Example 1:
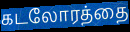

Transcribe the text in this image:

கடலோரத்தை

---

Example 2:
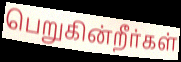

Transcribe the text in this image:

பெறுகின்றீர்கள்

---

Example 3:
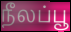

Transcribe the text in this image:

நீலப்பூ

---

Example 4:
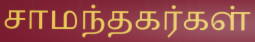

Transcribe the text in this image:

சாமந்தகர்கள்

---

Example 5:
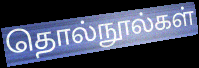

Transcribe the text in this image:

தொல்நூல்கள்